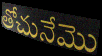
తోచునేమొ